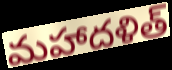
మహాదళిత్